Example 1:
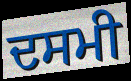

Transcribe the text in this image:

ਦਸਮੀ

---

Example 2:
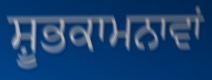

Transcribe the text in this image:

ਸ਼ੂਭਕਾਮਨਾਵਾਂ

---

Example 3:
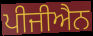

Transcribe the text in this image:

ਪੀਜੀਐਨ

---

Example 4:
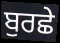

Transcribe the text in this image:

ਬੁਰਛੇ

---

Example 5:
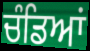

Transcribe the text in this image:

ਚੰਡਿਆਂ